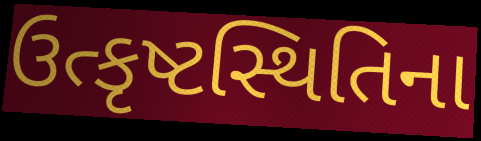
ઉત્કૃષ્ટસ્થિતિના